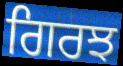
ਗਿਰਝ